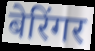
बेरिंगर